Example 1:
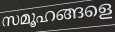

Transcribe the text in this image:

സമൂഹങ്ങളെ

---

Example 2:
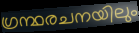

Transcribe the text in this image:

ഗ്രന്ഥരചനയിലും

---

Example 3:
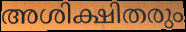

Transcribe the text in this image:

അശിക്ഷിതരും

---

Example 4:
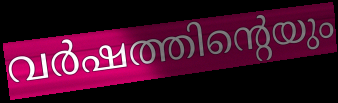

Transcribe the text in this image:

വർഷത്തിന്റെയും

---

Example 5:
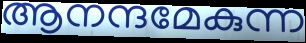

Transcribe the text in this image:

ആനന്ദമേകുന്ന